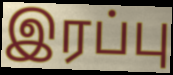
இரப்பு